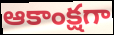
ఆకాంక్షగా